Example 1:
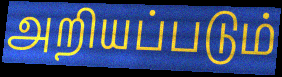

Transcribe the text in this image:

அறியப்படும்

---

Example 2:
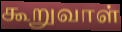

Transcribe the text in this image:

கூறுவாள்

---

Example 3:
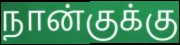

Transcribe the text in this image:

நான்குக்கு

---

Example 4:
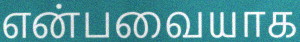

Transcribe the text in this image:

என்பவையாக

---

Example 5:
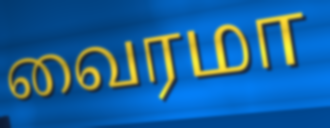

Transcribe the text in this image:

வைரமா